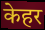
केहर